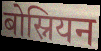
बोस्नियन